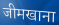
जीमखाना